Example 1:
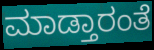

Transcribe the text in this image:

ಮಾಡ್ತಾರಂತೆ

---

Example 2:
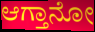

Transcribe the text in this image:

ಆಗ್ತಾನೋ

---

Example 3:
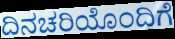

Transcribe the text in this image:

ದಿನಚರಿಯೊಂದಿಗೆ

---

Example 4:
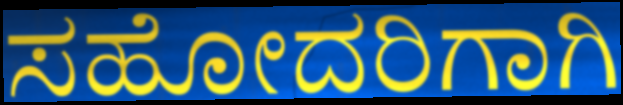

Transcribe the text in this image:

ಸಹೋದರಿಗಾಗಿ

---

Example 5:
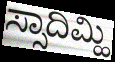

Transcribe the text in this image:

ಸ್ಸಾದಿಮ್ಹಿ